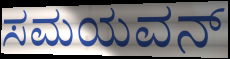
ಸಮಯವನ್